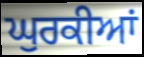
ਘੁਰਕੀਆਂ